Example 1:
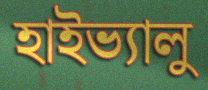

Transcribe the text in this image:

হাইভ্যালু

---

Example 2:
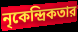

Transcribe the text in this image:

নৃকেন্দ্রিকতার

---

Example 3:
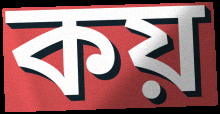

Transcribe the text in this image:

কয়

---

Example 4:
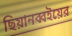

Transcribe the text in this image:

ছিয়ানব্বইয়ের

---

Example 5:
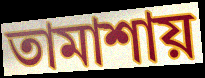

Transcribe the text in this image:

তামাশায়